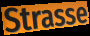
Strasse